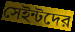
সেইন্টদের